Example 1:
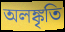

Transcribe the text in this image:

অলঙ্কৃতি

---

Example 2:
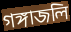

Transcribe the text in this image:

গঙ্গাজলি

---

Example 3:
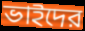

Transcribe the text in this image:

ভাইদের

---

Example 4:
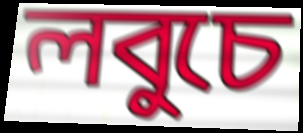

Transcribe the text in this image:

লবুচে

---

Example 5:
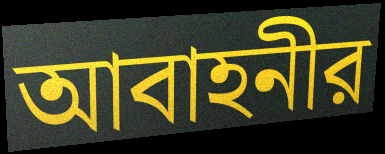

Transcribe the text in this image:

আবাহনীর